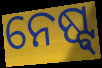
ନେଷ୍ଟ୍